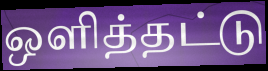
ஒளித்தட்டு